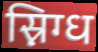
स्निग्ध